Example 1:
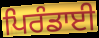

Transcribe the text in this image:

ਪਿਰੰਡਾਈ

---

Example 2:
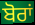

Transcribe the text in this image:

ਬੋਰਾਂ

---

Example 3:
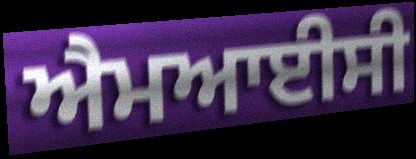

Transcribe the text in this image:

ਐਮਆਈਸੀ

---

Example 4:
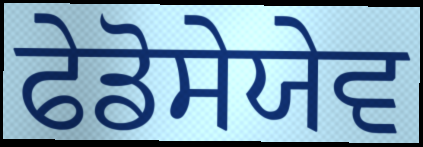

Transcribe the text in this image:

ਫੇਡੋਸੇਯੇਵ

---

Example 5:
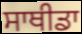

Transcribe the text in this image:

ਸਾਥੀਡਾ